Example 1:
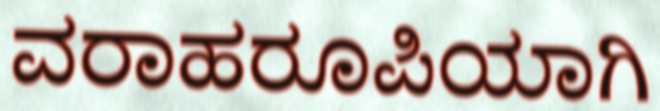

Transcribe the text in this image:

ವರಾಹರೂಪಿಯಾಗಿ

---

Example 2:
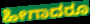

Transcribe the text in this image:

ಹೀಗಾದರೂ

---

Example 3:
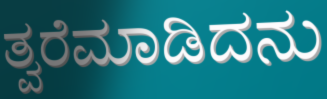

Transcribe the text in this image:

ತ್ವರೆಮಾಡಿದನು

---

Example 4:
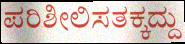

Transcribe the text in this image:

ಪರಿಶೀಲಿಸತಕ್ಕದ್ದು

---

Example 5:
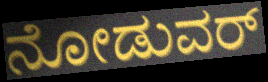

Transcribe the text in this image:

ನೋಡುವರ್